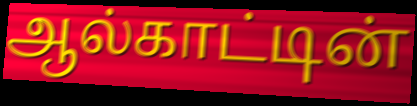
ஆல்காட்டின்